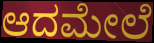
ಆದಮೇಲೆ